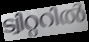
ട്വിറ്ററിൽ